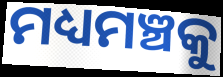
ମଧ୍ୟମଞ୍ଚକୁ